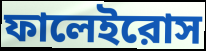
ফালেইরোস